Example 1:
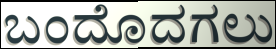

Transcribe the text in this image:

ಬಂದೊದಗಲು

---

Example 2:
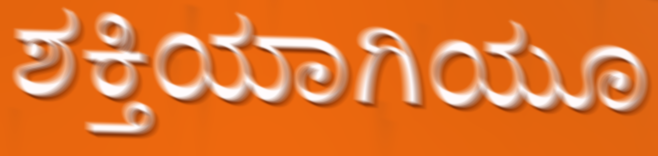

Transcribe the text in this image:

ಶಕ್ತಿಯಾಗಿಯೂ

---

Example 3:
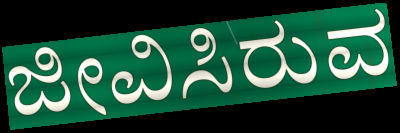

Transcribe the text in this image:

ಜೀವಿಸಿರುವ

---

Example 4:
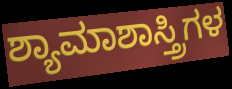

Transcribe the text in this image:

ಶ್ಯಾಮಾಶಾಸ್ತ್ರಿಗಳ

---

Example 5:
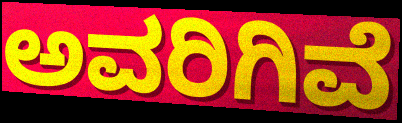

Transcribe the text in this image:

ಅವರಿಗಿವೆ